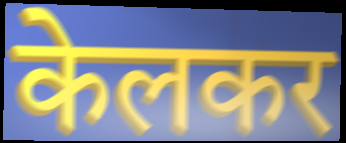
केलकर